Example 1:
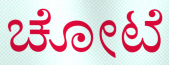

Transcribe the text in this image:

ಚೋಟೆ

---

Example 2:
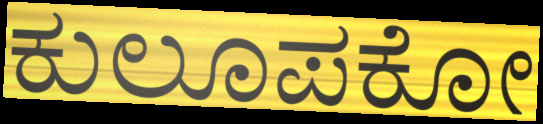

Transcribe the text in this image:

ಕುಲೂಪಕೋ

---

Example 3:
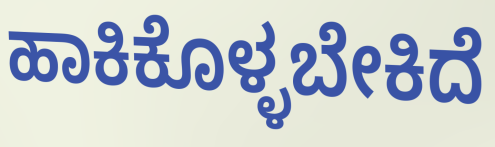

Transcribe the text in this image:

ಹಾಕಿಕೊಳ್ಳಬೇಕಿದೆ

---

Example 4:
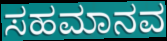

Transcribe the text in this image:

ಸಹಮಾನವ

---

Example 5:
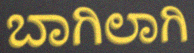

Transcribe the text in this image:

ಬಾಗಿಲಾಗಿ